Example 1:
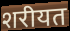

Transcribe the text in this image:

शरीयत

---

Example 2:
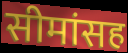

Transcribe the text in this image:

सीमांसह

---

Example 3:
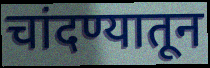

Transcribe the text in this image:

चांदण्यातून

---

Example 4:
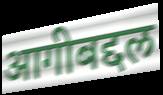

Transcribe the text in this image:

आगीबद्दल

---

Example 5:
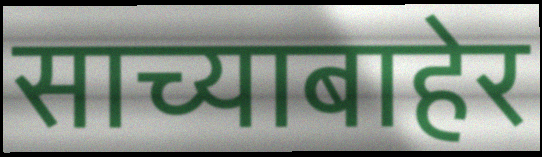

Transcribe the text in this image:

साच्याबाहेर